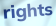
rights